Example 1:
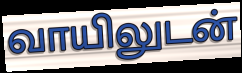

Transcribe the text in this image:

வாயிலுடன்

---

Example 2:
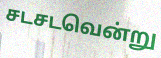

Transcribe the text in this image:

சடசடவென்று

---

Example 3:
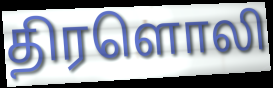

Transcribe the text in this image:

திரளொலி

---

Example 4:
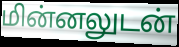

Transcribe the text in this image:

மின்னலுடன்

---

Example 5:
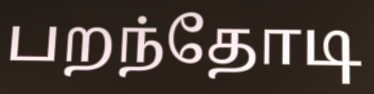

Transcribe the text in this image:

பறந்தோடி